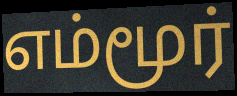
எம்மூர்